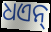
ଧଏନ୍